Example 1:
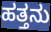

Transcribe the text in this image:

ಹತ್ತನು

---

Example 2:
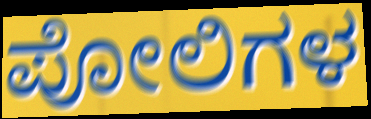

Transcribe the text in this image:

ಪೋಲಿಗಳ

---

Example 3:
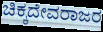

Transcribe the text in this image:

ಚಿಕ್ಕದೇವರಾಜರ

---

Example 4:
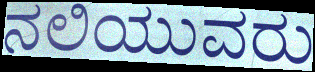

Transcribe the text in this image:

ನಲಿಯುವರು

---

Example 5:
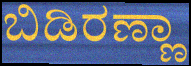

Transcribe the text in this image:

ಬಿಡಿರಣ್ಣಾ